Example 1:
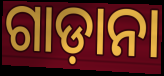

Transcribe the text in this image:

ଗାଡ଼ାନା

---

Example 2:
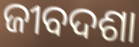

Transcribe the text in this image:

ଜୀବଦଶା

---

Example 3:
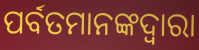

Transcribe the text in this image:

ପର୍ବତମାନଙ୍କଦ୍ଵାରା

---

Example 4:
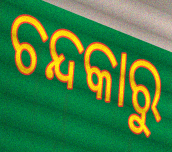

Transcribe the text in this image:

ଚନ୍ଦକାରୁ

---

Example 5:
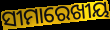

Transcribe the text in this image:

ସୀମାରେଖୀୟ